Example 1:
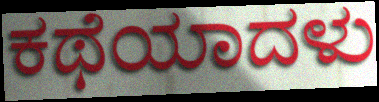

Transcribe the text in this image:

ಕಥೆಯಾದಳು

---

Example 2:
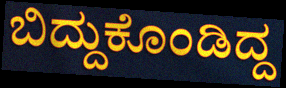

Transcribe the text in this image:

ಬಿದ್ದುಕೊಂಡಿದ್ದ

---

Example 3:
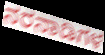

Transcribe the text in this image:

ನರನಾಡಿಗಳ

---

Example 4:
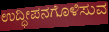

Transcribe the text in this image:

ಉದ್ಧೀಪನಗೊಳಿಸುವ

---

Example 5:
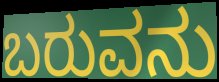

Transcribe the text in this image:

ಬರುವನು